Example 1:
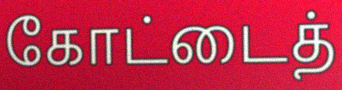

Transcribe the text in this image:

கோட்டைத்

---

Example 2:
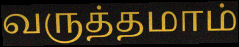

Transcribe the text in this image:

வருத்தமாம்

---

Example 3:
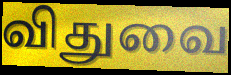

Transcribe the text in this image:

விதுவை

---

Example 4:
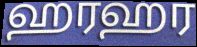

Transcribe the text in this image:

ஹரஹர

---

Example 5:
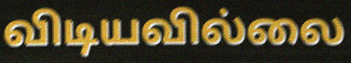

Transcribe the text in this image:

விடியவில்லை